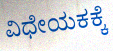
ವಿಧೇಯಕಕ್ಕೆ